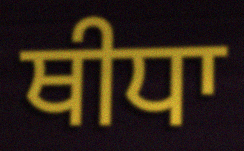
ਥੀਧਾ